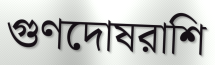
গুণদোষরাশি